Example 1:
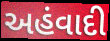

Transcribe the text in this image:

અહંવાદી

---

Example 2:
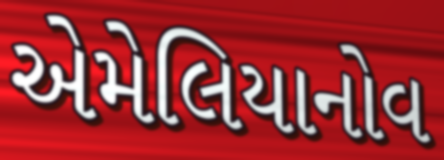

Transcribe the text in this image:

એમેલિયાનોવ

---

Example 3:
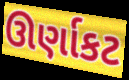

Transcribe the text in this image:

ઊર્ણાકટ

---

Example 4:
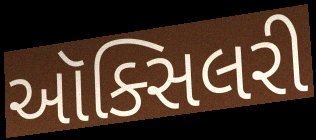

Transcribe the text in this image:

ઑક્સિલરી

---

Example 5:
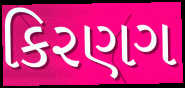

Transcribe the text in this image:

કિરણગ